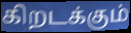
கிறடக்கும்